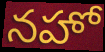
నహో